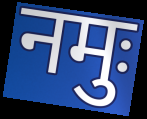
नमुः